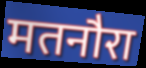
मतनौरा